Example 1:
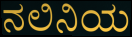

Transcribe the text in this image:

ನಲಿನಿಯ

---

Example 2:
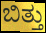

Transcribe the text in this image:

ಬಿತ್ತು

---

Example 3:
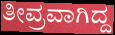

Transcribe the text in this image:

ತೀವ್ರವಾಗಿದ್ದ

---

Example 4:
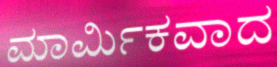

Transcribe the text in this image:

ಮಾರ್ಮಿಕವಾದ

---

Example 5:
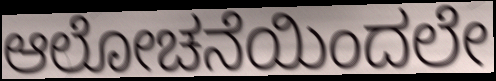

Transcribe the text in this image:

ಆಲೋಚನೆಯಿಂದಲೇ